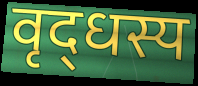
वृद्धस्य